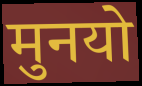
मुनयो